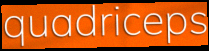
quadriceps